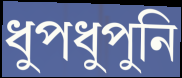
ধুপধুপুনি